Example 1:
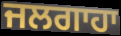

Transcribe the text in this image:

ਜਲਗਾਹਾ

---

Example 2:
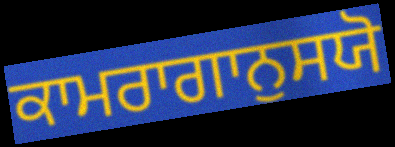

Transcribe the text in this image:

ਕਾਮਰਾਗਾਨੁਸਯੋ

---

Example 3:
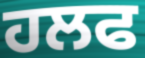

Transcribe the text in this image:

ਹਲਫ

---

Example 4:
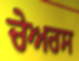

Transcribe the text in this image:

ਚੇਅਰਸ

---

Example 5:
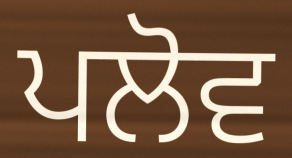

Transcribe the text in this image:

ਪਲੋਵ